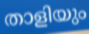
താളിയും